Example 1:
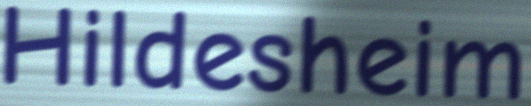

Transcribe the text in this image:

Hildesheim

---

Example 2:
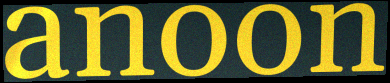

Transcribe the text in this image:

anoon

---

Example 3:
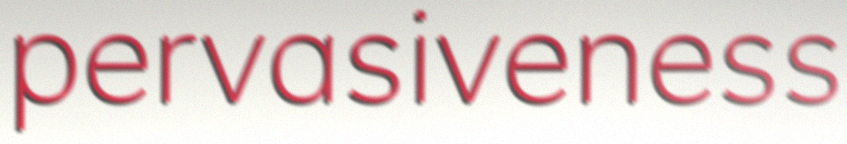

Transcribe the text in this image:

pervasiveness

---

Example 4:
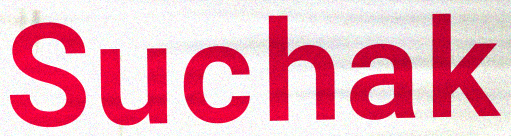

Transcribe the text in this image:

Suchak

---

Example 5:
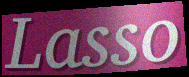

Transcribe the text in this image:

Lasso